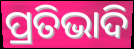
ପ୍ରତିଭାଦି